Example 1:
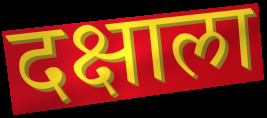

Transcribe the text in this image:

दक्षाला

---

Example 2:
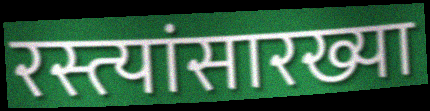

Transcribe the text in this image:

रस्त्यांसारख्या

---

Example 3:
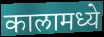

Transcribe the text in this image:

कालामध्ये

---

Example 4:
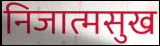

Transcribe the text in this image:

निजात्मसुख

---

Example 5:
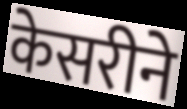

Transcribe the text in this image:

केसरीने